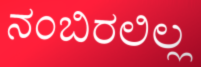
ನಂಬಿರಲಿಲ್ಲ